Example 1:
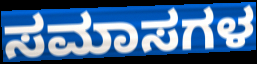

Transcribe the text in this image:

ಸಮಾಸಗಳ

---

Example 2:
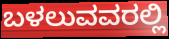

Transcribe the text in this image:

ಬಳಲುವವರಲ್ಲಿ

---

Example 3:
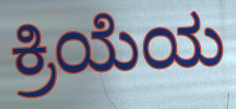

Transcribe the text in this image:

ಕ್ರಿಯೆಯ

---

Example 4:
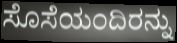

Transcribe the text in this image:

ಸೊಸೆಯಂದಿರನ್ನು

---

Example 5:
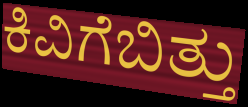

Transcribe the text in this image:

ಕಿವಿಗೆಬಿತ್ತು